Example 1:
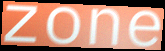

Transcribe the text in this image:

zone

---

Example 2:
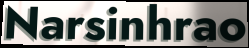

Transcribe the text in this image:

Narsinhrao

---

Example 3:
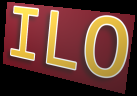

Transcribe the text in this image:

ILO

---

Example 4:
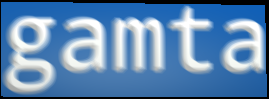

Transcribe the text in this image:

gamta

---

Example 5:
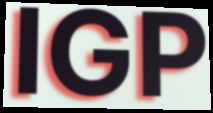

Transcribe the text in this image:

IGP